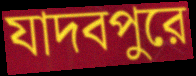
যাদবপুরে